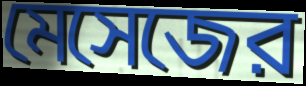
মেসেজের